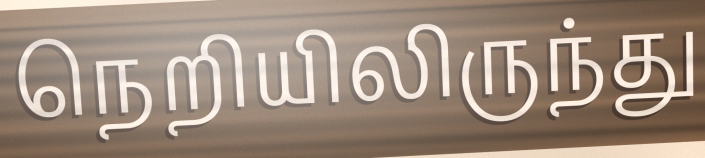
நெறியிலிருந்து